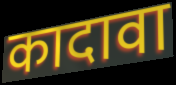
कादावा